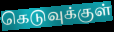
கெடுவுக்குள்